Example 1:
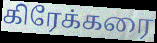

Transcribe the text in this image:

கிரேக்கரை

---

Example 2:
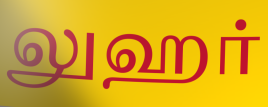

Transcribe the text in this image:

லுஹர்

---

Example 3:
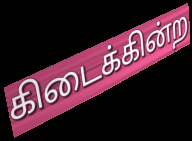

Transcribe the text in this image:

கிடைக்கின்ற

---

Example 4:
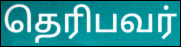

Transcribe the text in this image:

தெரிபவர்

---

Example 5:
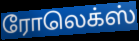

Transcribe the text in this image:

ரோலெக்ஸ்